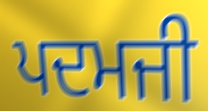
ਪਦਮਜੀ